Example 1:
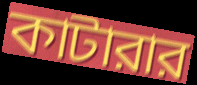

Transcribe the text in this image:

কাটারার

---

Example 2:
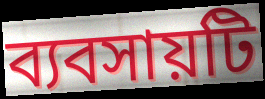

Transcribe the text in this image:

ব্যবসায়টি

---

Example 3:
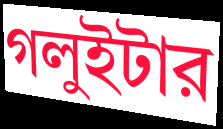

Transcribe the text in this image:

গলুইটার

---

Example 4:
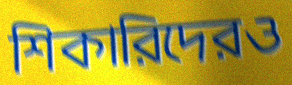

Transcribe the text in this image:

শিকারিদেরও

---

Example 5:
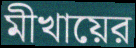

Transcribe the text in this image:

মীখায়ের